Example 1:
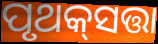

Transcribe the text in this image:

ପୃଥକ୍‌ସତ୍ତା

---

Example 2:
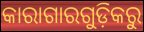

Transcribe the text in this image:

କାରାଗାରଗୁଡ଼ିକରୁ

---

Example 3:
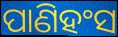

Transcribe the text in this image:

ପାଣିହଂସ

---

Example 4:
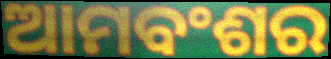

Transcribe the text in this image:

ଆମବଂଶର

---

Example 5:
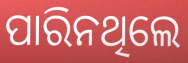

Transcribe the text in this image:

ପାରିନଥିଲେ